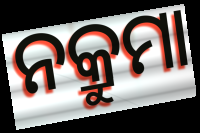
ନକ୍ରୁମା